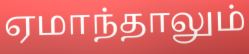
ஏமாந்தாலும்